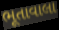
ભૂતાવાલા